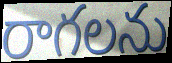
రాగలను